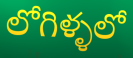
లోగిళ్ళలో